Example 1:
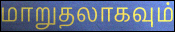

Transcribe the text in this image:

மாறுதலாகவும்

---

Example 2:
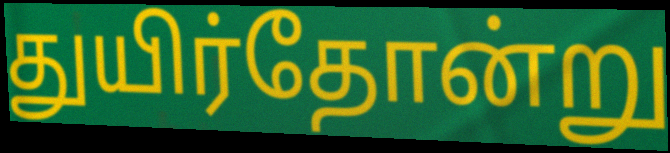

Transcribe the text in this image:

துயிர்தோன்று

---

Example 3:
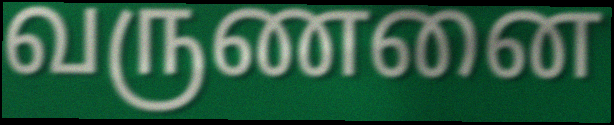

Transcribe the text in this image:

வருணனை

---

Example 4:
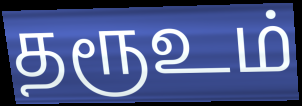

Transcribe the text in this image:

தரூஉம்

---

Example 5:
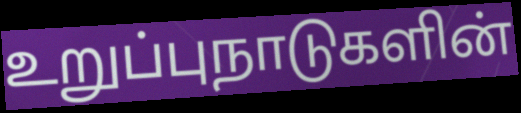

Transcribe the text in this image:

உறுப்புநாடுகளின்